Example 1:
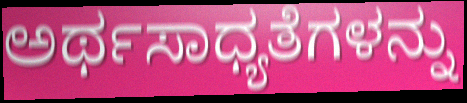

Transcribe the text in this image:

ಅರ್ಥಸಾಧ್ಯತೆಗಳನ್ನು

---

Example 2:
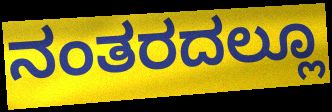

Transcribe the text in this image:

ನಂತರದಲ್ಲೂ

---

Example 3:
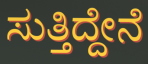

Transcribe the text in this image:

ಸುತ್ತಿದ್ದೇನೆ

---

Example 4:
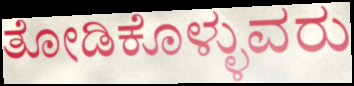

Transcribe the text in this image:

ತೋಡಿಕೊಳ್ಳುವರು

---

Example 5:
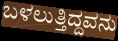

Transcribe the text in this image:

ಬಳಲುತ್ತಿದ್ದವನು